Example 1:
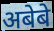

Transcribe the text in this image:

अबेबे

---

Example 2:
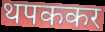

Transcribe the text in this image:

थपककर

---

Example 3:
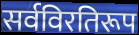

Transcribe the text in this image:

सर्वविरतिरूप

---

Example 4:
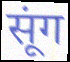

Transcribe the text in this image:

सूंग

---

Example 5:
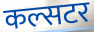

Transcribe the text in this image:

कल्सटर